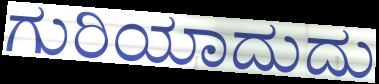
ಗುರಿಯಾದುದು